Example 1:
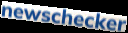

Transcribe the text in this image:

newschecker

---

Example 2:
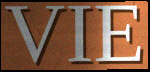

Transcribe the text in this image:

VIE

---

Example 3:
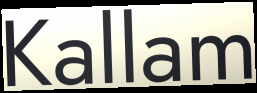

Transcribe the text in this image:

Kallam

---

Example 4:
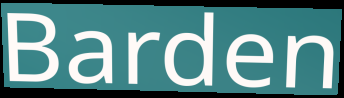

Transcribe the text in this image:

Barden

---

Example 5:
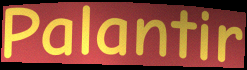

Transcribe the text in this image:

Palantir